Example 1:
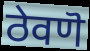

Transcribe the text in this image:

ठेवणॆ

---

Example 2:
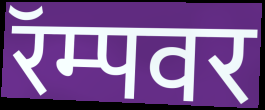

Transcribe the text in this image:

रॅम्पवर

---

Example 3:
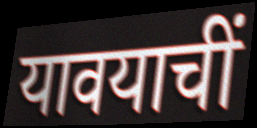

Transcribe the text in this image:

यावयाचीं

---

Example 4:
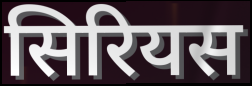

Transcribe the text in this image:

सिरियस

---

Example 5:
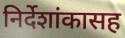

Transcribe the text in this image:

निर्देशांकासह